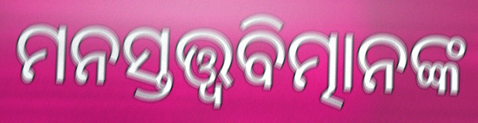
ମନସ୍ତତ୍ତ୍ବବିତ୍ମାନଙ୍କ